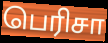
பெரிசா